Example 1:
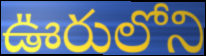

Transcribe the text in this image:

ఊరులోని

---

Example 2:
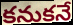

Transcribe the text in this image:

కనుకనే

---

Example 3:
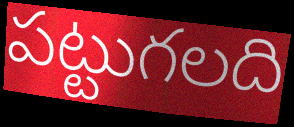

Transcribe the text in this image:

పట్టుగలది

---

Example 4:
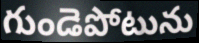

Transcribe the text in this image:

గుండెపోటును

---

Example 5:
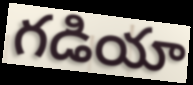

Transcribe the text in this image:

గడియా